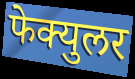
फेक्युलर